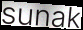
sunak